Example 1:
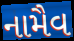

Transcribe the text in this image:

નામૈવ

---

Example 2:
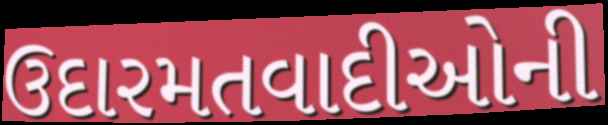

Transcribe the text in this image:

ઉદારમતવાદીઓની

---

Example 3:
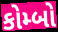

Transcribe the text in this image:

કોમ્બો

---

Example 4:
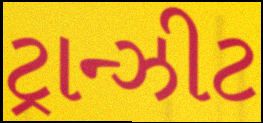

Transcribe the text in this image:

ટ્રાન્ઝીટ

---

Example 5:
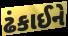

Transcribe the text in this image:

ઢંકાઈને